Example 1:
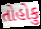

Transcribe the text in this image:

તોહોકુ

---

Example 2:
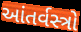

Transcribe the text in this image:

આંતર્વસ્ત્રો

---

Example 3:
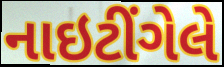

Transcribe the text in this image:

નાઇટીંગેલે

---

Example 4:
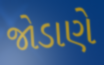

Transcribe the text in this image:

જોડાણે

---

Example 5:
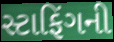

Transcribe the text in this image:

સ્ટાફિંગની